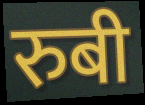
रुबी